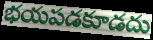
భయపడకూడదు